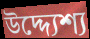
উদ্দ্যেশ্য